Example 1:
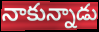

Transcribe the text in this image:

నాకున్నాడు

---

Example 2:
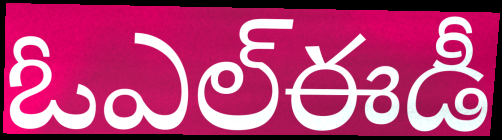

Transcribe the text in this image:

ఓఎల్ఈడీ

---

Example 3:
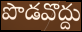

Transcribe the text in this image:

పొడవొద్దు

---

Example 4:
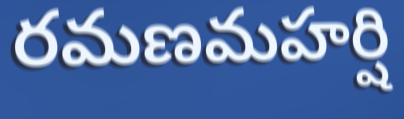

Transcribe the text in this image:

రమణమహర్షి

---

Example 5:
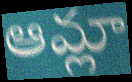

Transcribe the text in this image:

ఆమ్లా